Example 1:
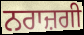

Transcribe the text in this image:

ਨਰਾਜ਼ਗੀ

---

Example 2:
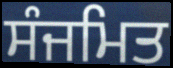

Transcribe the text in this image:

ਸੰਜਮਿਤ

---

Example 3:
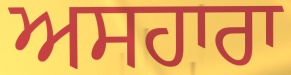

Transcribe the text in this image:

ਅਸਹਾਰਾ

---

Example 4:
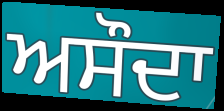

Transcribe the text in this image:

ਅਸੌਦਾ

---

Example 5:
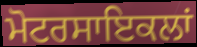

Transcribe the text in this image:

ਮੋਟਰਸਾਇਕਲਾਂ